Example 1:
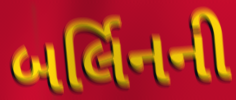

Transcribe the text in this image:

બર્લિનની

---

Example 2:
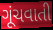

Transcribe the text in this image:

ગૂંચવાતી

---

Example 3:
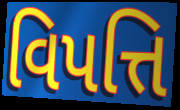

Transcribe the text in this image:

વિપત્તિ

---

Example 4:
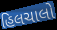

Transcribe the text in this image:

હિલચાલો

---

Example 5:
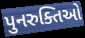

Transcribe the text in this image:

પુનરુક્તિઓ